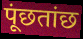
पूंछतांछ